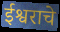
ईश्वराचे